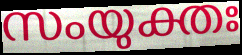
സംയുക്തഃ